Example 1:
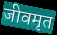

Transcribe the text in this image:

जीवमृत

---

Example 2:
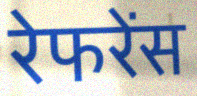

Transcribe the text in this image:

रेफरेंस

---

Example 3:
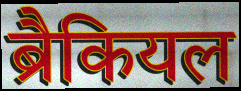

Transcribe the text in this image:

ब्रैकियल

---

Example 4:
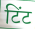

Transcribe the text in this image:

टिंट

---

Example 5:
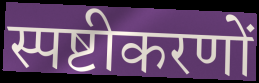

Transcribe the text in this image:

स्पष्टीकरणों